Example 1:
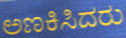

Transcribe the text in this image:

ಅಣಕಿಸಿದರು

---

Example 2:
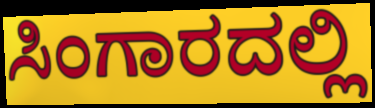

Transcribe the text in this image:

ಸಿಂಗಾರದಲ್ಲಿ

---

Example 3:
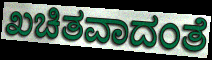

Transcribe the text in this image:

ಖಚಿತವಾದಂತೆ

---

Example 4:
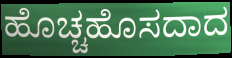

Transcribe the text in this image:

ಹೊಚ್ಚಹೊಸದಾದ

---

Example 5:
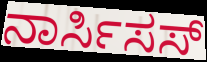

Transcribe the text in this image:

ನಾರ್ಸಿಸಸ್